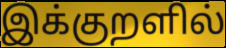
இக்குறளில்